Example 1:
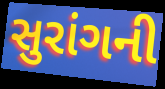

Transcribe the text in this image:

સુરાંગની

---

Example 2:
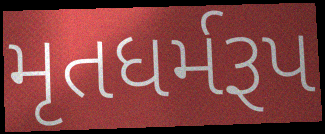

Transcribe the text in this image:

મૃતધર્મરૂપ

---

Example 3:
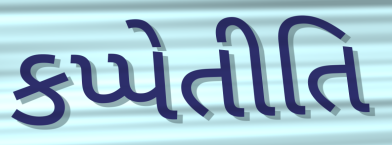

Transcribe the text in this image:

કપ્પેતીતિ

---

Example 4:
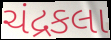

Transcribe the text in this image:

ચંદ્રકલા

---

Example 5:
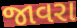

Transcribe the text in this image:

જાવરા